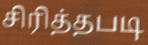
சிரித்தபடி